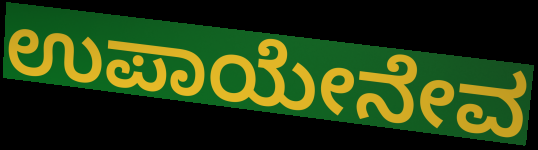
ಉಪಾಯೇನೇವ